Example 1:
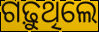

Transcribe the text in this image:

ଗଢ଼ୁଥିଲେ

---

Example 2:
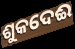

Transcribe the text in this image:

ଶୁକଦେଈ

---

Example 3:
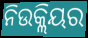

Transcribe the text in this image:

ନିଉକ୍ଲିୟର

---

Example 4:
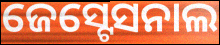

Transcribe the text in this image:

ଜେସ୍ଟେସନାଲ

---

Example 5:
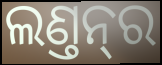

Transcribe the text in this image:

ଲଣ୍ତନ୍‌ର